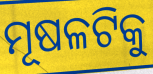
ମୂଷଳଟିକୁ